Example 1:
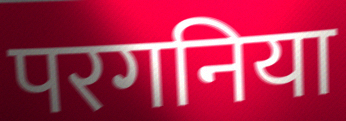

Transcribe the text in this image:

परगनिया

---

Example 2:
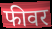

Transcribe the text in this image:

फीवर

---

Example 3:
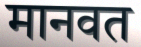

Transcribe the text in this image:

मानवत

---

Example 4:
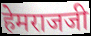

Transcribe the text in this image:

हेमराजजी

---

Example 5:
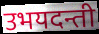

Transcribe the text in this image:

उभयदन्ती